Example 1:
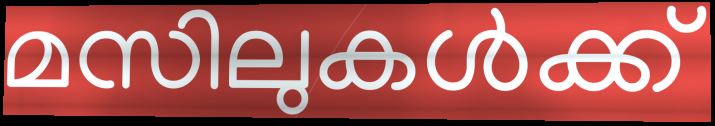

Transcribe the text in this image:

മസിലുകൾക്ക്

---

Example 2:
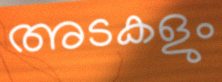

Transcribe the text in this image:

അടകളും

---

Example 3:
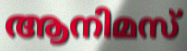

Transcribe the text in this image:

ആനിമസ്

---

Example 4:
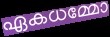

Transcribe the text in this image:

ഏകധമ്മോ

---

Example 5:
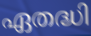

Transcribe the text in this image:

ഏതദ്ധി